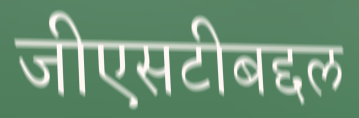
जीएसटीबद्दल